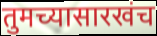
तुमच्यासारखंच